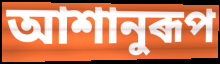
আশানুৰূপ